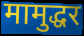
मामुद्धर